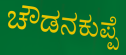
ಚೌಡನಕುಪ್ಪೆ